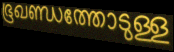
ഭൂഖണ്ഡത്തോടുള്ള